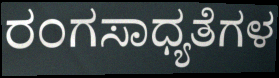
ರಂಗಸಾಧ್ಯತೆಗಳ